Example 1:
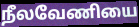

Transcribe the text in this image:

நீலவேணியை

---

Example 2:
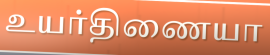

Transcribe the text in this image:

உயர்திணையா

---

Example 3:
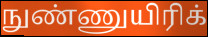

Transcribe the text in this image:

நுண்ணுயிரிக்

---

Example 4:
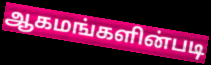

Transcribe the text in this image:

ஆகமங்களின்படி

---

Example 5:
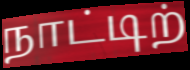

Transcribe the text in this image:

நாட்டிற்